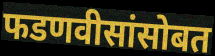
फडणवीसांसोबत